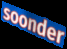
soonder